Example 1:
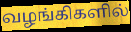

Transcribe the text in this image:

வழங்கிகளில்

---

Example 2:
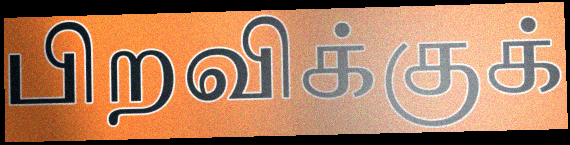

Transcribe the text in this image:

பிறவிக்குக்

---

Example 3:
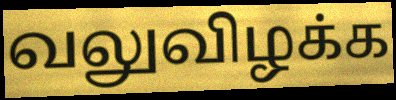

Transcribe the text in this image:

வலுவிழக்க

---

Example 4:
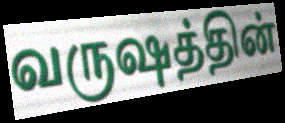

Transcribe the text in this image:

வருஷத்தின்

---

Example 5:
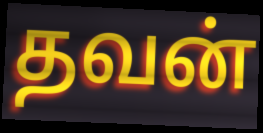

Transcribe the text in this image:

தவன்